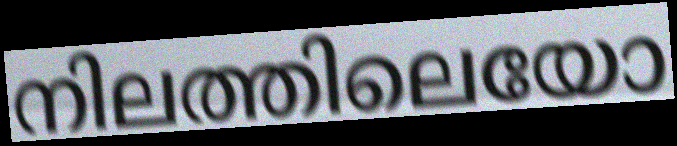
നിലത്തിലെയോ